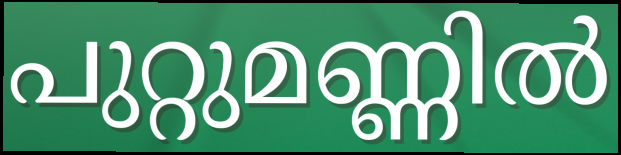
പുറ്റുമണ്ണിൽ